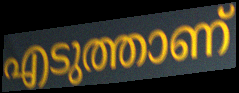
എടുത്താണ്